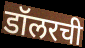
डॉलरची